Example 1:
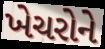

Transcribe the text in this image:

ખેચરોને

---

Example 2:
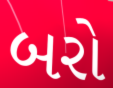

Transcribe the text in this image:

બરો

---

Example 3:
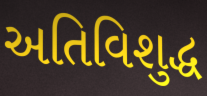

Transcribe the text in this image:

અતિવિશુદ્ધ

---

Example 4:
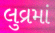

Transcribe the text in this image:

લુવ્રમાં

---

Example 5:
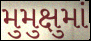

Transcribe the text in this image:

મુમુક્ષુમાં